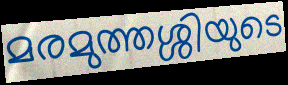
മരമുത്തശ്ശിയുടെ